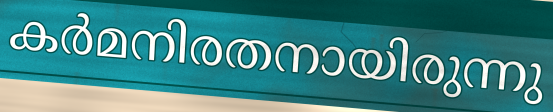
കർമനിരതനായിരുന്നു